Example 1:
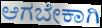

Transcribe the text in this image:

ಆಗಬೇಕಾಗಿ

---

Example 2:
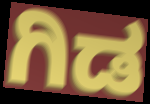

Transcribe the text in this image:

ಗಿಡ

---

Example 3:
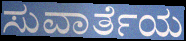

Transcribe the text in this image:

ಸುವಾರ್ತೆಯ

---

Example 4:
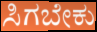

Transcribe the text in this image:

ಸಿಗಬೇಕು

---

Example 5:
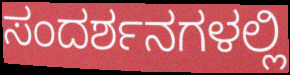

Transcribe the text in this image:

ಸಂದರ್ಶನಗಳಲ್ಲಿ